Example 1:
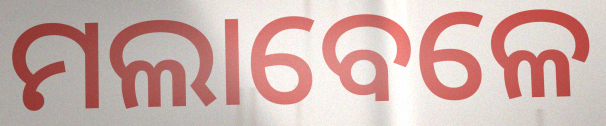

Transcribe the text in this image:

ମଲାବେଳେ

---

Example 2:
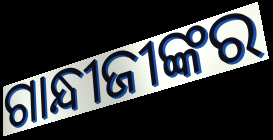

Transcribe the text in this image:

ଗାନ୍ଧୀଜୀଙ୍କର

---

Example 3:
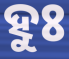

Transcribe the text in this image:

ହୁଃ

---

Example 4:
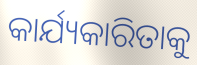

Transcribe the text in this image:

କାର୍ଯ୍ୟକାରିତାକୁ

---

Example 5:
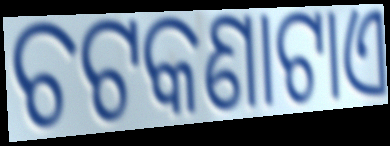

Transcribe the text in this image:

ଚଟକଣାଟାଏ